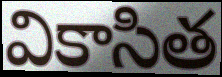
వికాసిత